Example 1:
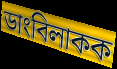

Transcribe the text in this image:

ডাংবিলাকক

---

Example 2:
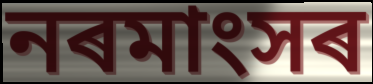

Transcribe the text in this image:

নৰমাংসৰ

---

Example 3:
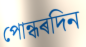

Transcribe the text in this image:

পোন্ধৰদিন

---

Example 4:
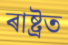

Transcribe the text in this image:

ৰাষ্ট্ৰত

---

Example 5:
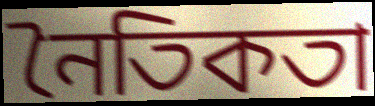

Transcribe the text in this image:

নৈতিকতা